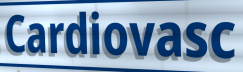
Cardiovasc